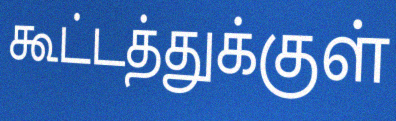
கூட்டத்துக்குள்